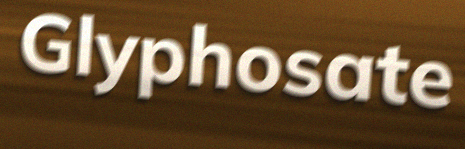
Glyphosate